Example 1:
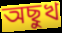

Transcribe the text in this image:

অছুখ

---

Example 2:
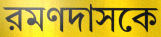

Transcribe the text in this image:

রমণদাসকে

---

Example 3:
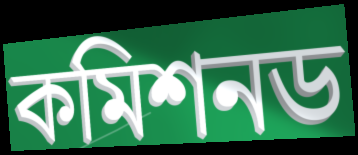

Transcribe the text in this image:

কমিশনড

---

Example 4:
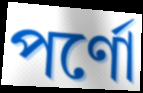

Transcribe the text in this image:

পর্ণো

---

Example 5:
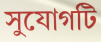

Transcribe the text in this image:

সুযোগটি